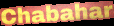
Chabahar